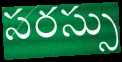
సరస్సు